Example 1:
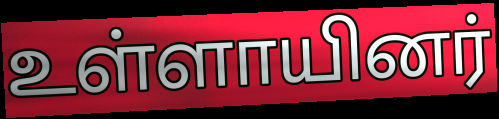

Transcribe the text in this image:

உள்ளாயினர்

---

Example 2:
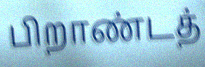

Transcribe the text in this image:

பிறாண்டத்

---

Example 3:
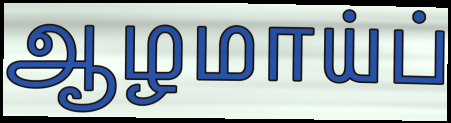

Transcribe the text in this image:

ஆழமாய்ப்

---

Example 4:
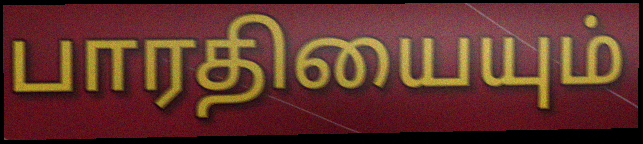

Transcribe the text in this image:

பாரதியையும்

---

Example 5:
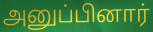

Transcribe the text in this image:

அனுப்பினார்